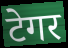
टेगर